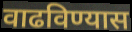
वाढविण्यास